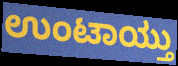
ಉಂಟಾಯ್ತು